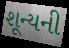
શૂન્યની